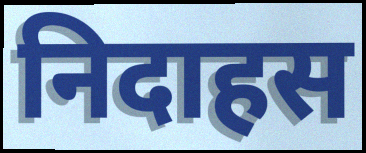
निदाहस